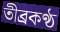
তীব্রকণ্ঠ